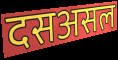
दसअसल